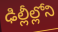
ఢిల్లీల్లోని